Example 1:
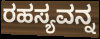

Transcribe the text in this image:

ರಹಸ್ಯವನ್ನ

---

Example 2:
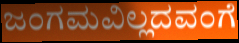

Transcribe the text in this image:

ಜಂಗಮವಿಲ್ಲದವಂಗೆ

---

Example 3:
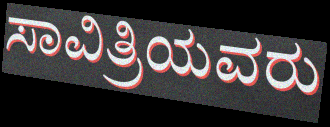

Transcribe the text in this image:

ಸಾವಿತ್ರಿಯವರು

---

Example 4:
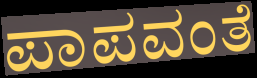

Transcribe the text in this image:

ಪಾಪವಂತೆ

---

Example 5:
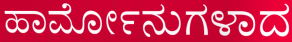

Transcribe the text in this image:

ಹಾರ್ಮೋನುಗಳಾದ